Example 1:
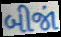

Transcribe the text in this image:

બીજાં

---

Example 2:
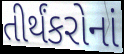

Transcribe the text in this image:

તીર્થંકરોનાં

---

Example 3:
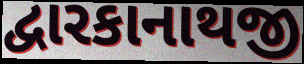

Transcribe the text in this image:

દ્વારકાનાથજી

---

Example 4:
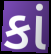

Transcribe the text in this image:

કાં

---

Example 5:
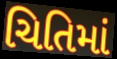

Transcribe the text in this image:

ચિતિમાં